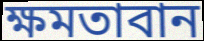
ক্ষমতাবান